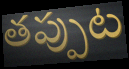
తప్పుట